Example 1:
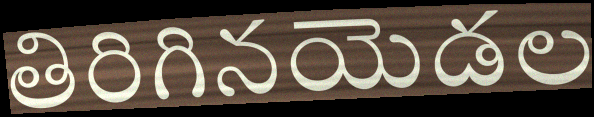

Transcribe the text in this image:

తిరిగినయెడల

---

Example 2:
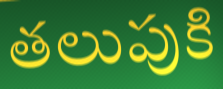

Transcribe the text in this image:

తలుపుకి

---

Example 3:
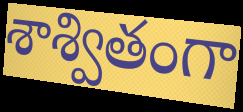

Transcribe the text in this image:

శాశ్వితంగా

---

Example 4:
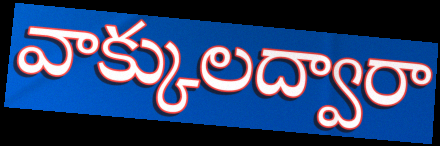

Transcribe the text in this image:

వాక్కులద్వారా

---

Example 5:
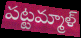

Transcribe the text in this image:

పట్టమ్మాళ్